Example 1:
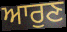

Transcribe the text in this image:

ਆਰੁਣ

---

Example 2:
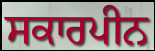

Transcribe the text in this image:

ਸਕਾਰਪੀਨ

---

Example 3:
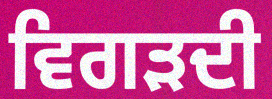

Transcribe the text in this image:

ਵਿਗੜਦੀ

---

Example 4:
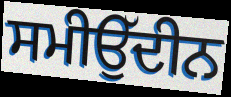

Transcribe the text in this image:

ਸਮੀਉੱਦੀਨ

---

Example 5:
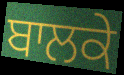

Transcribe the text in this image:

ਬਾਲਕੇ